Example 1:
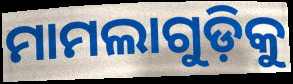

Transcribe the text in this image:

ମାମଲାଗୁଡ଼ିକୁ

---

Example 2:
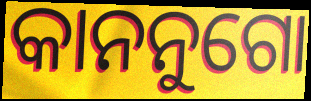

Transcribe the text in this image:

କାନନୁଗୋ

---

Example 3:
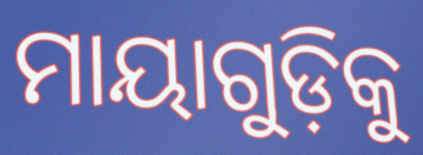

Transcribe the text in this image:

ମାୟାଗୁଡ଼ିକୁ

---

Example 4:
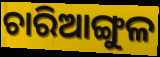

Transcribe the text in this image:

ଚାରିଆଙ୍ଗୁଳ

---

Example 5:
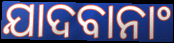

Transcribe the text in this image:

ଯାଦବାନାଂ